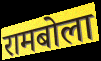
रामबोला